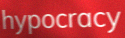
hypocracy